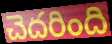
చెదరింది